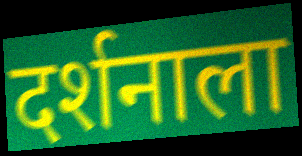
दर्शनाला